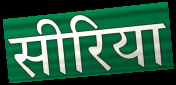
सीरिया